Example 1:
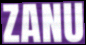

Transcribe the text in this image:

ZANU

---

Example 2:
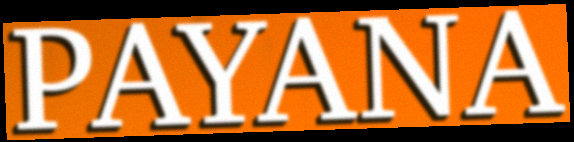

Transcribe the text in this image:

PAYANA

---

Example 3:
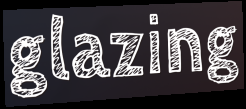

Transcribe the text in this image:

glazing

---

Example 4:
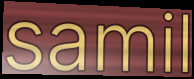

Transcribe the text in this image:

samil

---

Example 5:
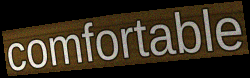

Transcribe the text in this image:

comfortable